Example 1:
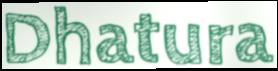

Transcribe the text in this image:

Dhatura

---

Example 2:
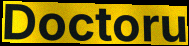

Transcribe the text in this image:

Doctoru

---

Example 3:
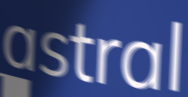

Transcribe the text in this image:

astral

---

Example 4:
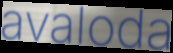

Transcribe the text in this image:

avaloda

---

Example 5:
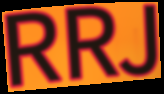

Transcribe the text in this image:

RRJ